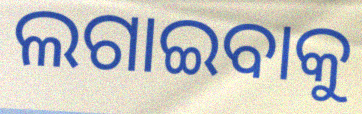
ଲଗାଇବାକୁ